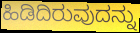
ಹಿಡಿದಿರುವುದನ್ನು